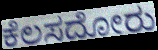
ಕೆಲಸದೋರು